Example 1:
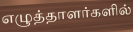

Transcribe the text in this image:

எழுத்தாளர்களில்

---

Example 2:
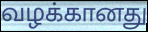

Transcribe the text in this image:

வழக்கானது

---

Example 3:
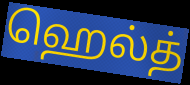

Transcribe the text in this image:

ஹெல்த்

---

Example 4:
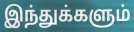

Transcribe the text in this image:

இந்துக்களும்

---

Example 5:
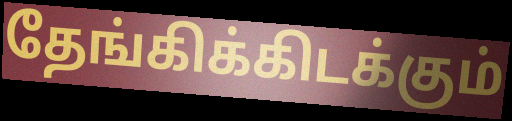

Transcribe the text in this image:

தேங்கிக்கிடக்கும்